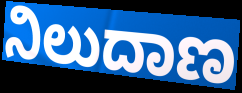
ನಿಲುದಾಣ